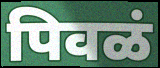
पिवळं